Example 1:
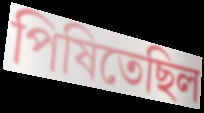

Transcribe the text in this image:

পিষিতেছিল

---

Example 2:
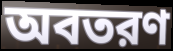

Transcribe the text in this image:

অবতরণ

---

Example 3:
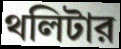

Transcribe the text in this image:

থলিটার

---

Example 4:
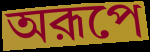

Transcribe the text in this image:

অরূপে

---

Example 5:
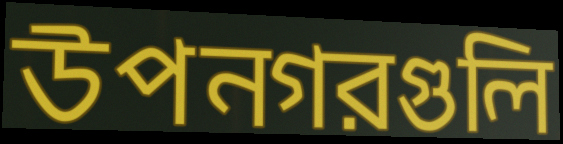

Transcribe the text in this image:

উপনগরগুলি